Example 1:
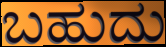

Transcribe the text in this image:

ಬಹುದು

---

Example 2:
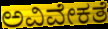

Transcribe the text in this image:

ಅವಿವೇಕತೆ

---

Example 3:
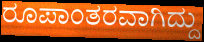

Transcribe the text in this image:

ರೂಪಾಂತರವಾಗಿದ್ದು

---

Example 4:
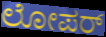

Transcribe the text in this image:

ಲೋಪರ್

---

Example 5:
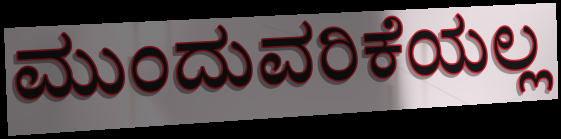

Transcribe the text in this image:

ಮುಂದುವರಿಕೆಯಲ್ಲ